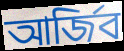
আৰ্জিব